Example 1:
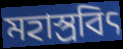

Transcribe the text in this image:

মহাস্ত্রবিৎ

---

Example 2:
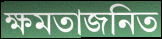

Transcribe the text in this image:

ক্ষমতাজনিত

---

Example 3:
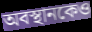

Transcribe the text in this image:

অবস্থানকেও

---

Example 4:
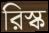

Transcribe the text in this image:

রিস্ক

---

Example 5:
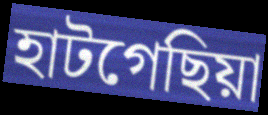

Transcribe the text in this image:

হাটগেছিয়া